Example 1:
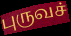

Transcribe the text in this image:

புருவச்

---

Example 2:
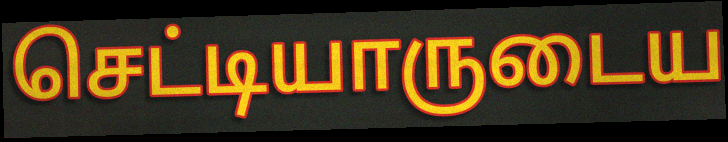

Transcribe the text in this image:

செட்டியாருடைய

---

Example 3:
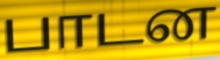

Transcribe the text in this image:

பாடன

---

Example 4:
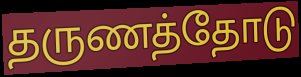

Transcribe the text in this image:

தருணத்தோடு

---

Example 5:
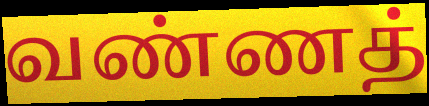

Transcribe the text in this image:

வண்ணத்